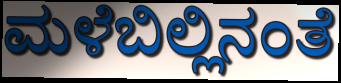
ಮಳೆಬಿಲ್ಲಿನಂತೆ